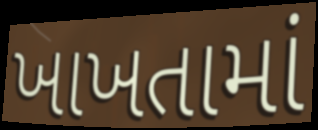
ખાખતામાં